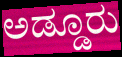
ಅಡ್ಡೂರು